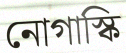
নোগাস্কি